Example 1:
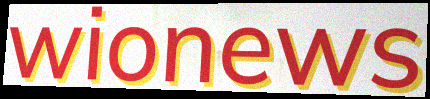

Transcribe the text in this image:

wionews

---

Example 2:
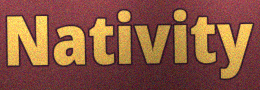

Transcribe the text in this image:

Nativity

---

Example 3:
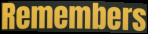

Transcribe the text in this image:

Remembers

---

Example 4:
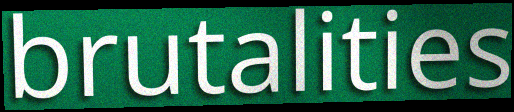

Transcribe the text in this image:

brutalities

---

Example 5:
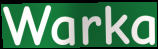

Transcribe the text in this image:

Warka